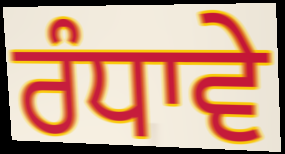
ਰੰਧਾਵੇ